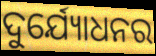
ଦୁର୍ଯ୍ୟୋଧନର